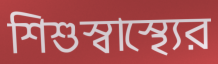
শিশুস্বাস্থ্যের